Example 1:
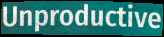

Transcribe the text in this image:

Unproductive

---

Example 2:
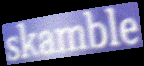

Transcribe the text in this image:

skamble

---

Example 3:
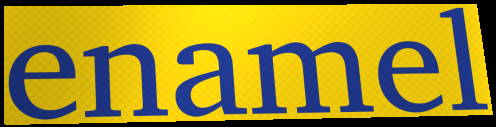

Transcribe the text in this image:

enamel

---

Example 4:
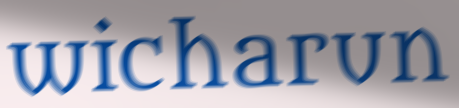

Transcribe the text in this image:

wicharun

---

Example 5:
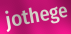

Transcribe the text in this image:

jothege